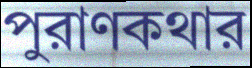
পুরাণকথার